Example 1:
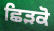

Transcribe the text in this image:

ਛਿੜਕੋ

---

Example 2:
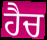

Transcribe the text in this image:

ਹੈਚ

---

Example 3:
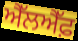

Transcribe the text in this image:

ਐੱਲਐੱਫ਼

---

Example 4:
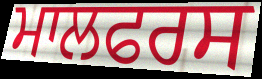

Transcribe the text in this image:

ਮਾਲਫਰਸ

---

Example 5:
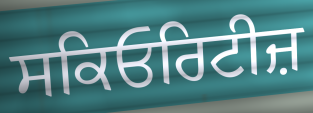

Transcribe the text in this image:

ਸਕਿਓਰਿਟੀਜ਼